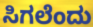
ಸಿಗಲೆಂದು